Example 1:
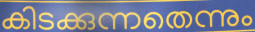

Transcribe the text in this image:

കിടക്കുന്നതെന്നും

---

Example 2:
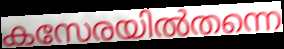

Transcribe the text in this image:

കസേരയിൽതന്നെ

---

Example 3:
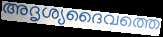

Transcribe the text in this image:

അദൃശ്യദൈവത്തെ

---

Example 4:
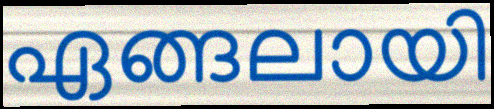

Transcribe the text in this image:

ഏങ്ങലായി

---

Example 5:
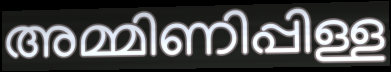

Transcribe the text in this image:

അമ്മിണിപ്പിള്ള